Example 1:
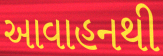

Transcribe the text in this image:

આવાહનથી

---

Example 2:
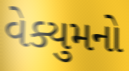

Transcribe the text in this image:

વેક્યુમનો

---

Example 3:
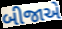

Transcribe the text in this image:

બીજાએ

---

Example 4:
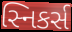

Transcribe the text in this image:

સ્નિકર્સ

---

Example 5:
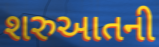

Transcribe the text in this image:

શરુઆતની